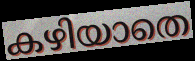
കഴിയാതെ